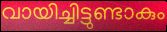
വായിച്ചിട്ടുണ്ടാകും